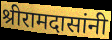
श्रीरामदासांनी